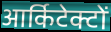
आर्किटेक्टों